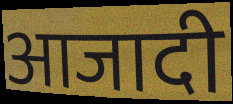
आजादी